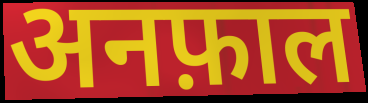
अनफ़ाल